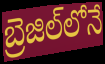
బ్రెజిల్‌లోనే